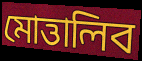
মোত্তালিব